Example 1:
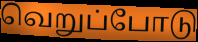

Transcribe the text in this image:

வெறுப்போடு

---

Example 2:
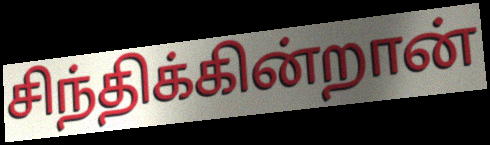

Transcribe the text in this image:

சிந்திக்கின்றான்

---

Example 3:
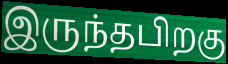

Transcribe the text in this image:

இருந்தபிறகு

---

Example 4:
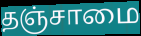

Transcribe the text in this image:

தஞ்சாமை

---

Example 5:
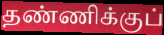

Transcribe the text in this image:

தண்ணிக்குப்